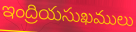
ఇంద్రియసుఖములు